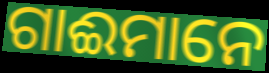
ଗାଈମାନେ